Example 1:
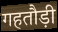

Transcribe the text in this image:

गहतौड़ी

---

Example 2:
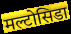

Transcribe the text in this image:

मल्टोसिडा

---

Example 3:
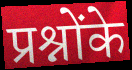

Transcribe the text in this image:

प्रश्नोंके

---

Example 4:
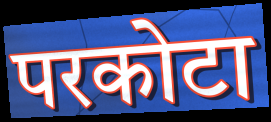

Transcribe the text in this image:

परकोटा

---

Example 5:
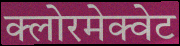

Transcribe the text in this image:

क्लोरमेक्वेट